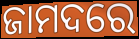
ଜାମଦରେ